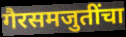
गैरसमजुतींचा